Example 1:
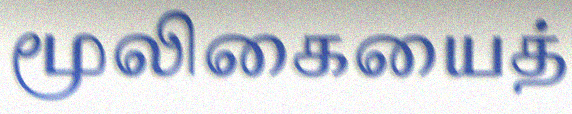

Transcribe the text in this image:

மூலிகையைத்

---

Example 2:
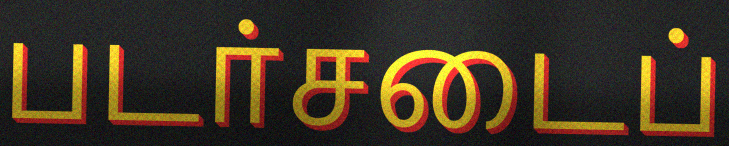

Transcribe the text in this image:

படர்சடைப்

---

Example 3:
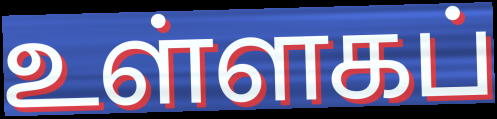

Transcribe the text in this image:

உள்ளகப்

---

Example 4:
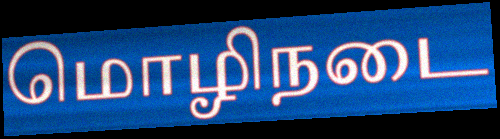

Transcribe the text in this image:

மொழிநடை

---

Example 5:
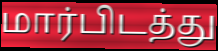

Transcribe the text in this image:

மார்பிடத்து